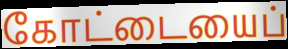
கோட்டையைப்